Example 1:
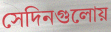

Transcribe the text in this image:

সেদিনগুলোয়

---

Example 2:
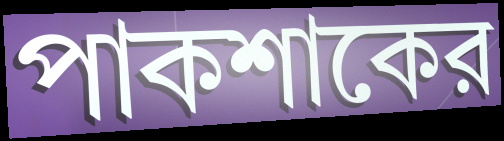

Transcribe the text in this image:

পাকশাকের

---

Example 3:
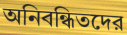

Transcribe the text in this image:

অনিবন্ধিতদের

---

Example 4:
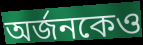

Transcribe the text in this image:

অর্জনকেও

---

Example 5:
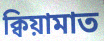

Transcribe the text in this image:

ক্বিয়ামাত